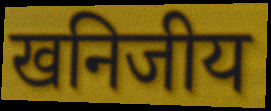
खनिजीय